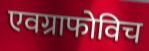
एवग्राफोविच